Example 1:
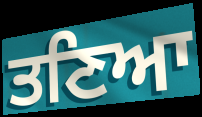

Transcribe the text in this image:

ਤਣਿਆ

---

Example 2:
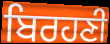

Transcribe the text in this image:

ਬਿਰਹਣੀ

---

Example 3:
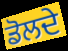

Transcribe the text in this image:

ਡੋਲਦੇ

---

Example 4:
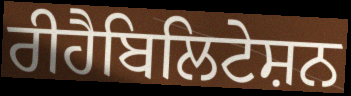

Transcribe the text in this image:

ਰੀਹੈਬਿਲਿਟੇਸ਼ਨ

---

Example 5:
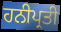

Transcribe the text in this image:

ਹਨੀਪ੍ਰਤੀ